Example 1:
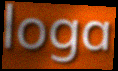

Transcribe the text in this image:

loga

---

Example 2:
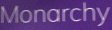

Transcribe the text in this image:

Monarchy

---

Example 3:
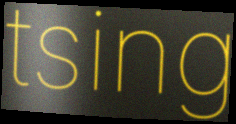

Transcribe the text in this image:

tsing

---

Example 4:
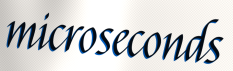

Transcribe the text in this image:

microseconds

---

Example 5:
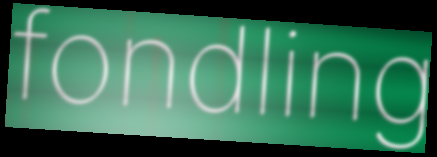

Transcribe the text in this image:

fondling